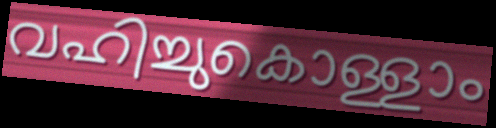
വഹിച്ചുകൊള്ളാം